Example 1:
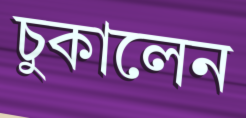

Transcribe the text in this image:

চুকালেন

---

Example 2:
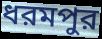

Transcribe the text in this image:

ধরমপুর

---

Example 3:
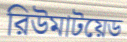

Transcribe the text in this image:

রিউমাটয়েড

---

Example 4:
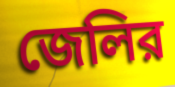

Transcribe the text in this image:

জেলির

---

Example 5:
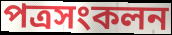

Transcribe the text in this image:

পত্রসংকলন